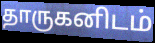
தாருகனிடம்